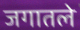
जगातले